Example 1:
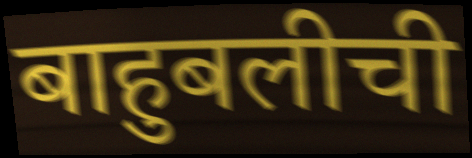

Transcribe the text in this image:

बाहुबलीची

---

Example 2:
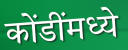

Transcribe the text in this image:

कोंडींमध्ये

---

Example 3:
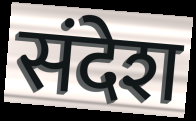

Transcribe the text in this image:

संदेश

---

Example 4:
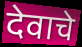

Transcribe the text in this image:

देवाचे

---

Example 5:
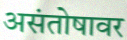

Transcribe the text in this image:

असंतोषावर